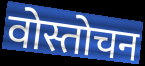
वोस्तोचन